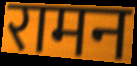
रामन